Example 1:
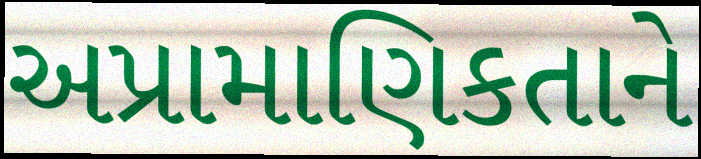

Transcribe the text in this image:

અપ્રામાણિકતાને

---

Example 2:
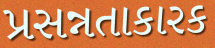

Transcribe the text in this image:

પ્રસન્નતાકારક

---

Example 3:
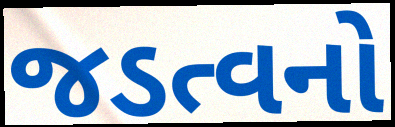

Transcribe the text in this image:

જડત્વનો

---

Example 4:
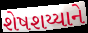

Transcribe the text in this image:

શેષશય્યાને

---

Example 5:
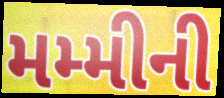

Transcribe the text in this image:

મમ્મીની